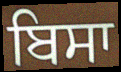
ਬਿਸਾ